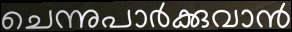
ചെന്നുപാർക്കുവാൻ